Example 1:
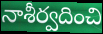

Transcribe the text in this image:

నాశీర్వదించి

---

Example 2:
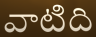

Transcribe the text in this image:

వాటిది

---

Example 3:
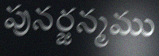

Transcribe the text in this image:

పునర్జన్మము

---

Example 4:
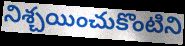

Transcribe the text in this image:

నిశ్చయించుకొంటిని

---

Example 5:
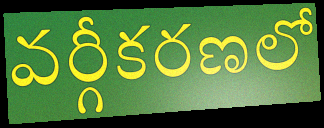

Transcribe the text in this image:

వర్గీకరణలో